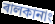
ৰালকানাং